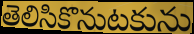
తెలిసికొనుటకును